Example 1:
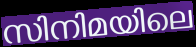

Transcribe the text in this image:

സിനിമയിലെ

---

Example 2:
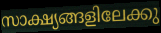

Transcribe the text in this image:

സാക്ഷ്യങ്ങളിലേക്കു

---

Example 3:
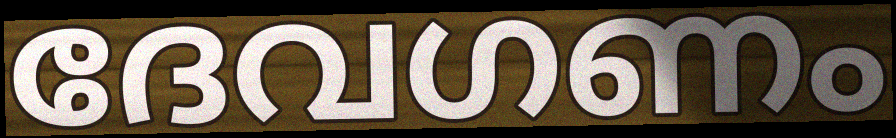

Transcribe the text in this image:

ദേവഗണം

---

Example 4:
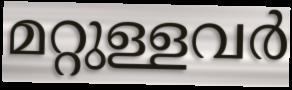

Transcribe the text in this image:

മറ്റുള്ളവർ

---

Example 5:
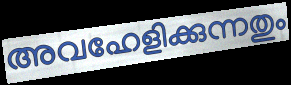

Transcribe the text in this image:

അവഹേളിക്കുന്നതും